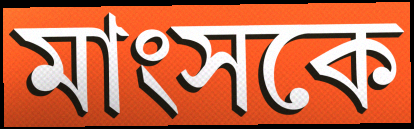
মাংসকে